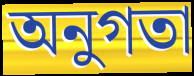
অনুগতা